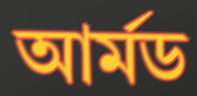
আৰ্মড